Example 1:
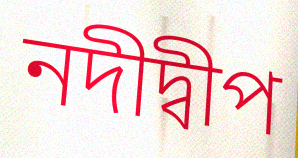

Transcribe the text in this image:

নদীদ্বীপ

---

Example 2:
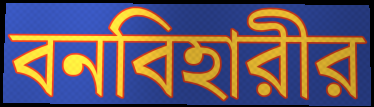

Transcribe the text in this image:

বনবিহারীর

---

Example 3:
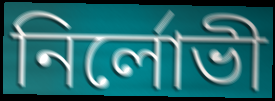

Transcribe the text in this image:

নির্লোভী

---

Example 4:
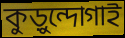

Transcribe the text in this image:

কুড়ুন্দোগাই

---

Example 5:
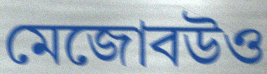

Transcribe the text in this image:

মেজোবউও